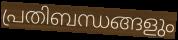
പ്രതിബന്ധങ്ങളും